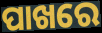
ପାଖରେ